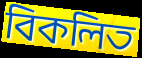
বিকলিত